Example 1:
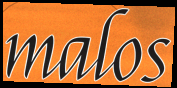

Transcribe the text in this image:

malos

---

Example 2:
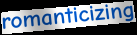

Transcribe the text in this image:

romanticizing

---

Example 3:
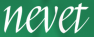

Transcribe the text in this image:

nevet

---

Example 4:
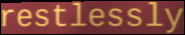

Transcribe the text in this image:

restlessly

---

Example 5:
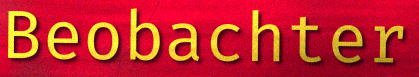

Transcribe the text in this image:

Beobachter